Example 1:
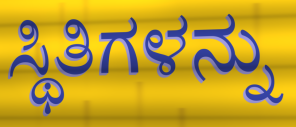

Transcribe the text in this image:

ಸ್ಥಿತಿಗಳನ್ನು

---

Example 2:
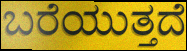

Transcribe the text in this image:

ಬರೆಯುತ್ತದೆ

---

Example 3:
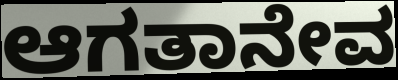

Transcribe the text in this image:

ಆಗತಾನೇವ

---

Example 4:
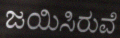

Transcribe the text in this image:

ಜಯಿಸಿರುವೆ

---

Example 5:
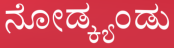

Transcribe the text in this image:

ನೋಡ್ಕ್ಯಂಡು